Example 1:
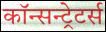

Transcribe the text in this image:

कॉन्सन्ट्रेटर्स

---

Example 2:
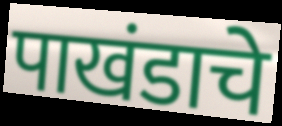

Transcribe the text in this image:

पाखंडाचे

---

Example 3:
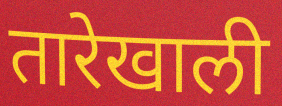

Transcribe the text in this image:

तारेखाली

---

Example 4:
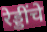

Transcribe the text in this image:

रेड्डींचे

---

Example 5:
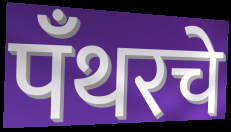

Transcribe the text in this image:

पँथरचे